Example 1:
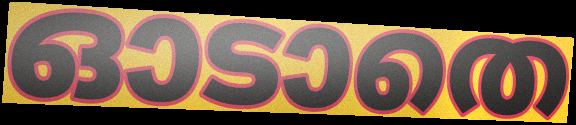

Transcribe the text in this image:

ഓടാതെ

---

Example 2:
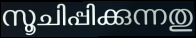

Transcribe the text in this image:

സൂചിപ്പിക്കുന്നതു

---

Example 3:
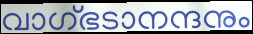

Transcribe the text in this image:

വാഗ്ഭടാനന്ദനും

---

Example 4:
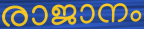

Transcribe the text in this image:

രാജാനം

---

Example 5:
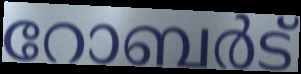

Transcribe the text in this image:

റോബർട്